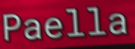
Paella